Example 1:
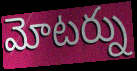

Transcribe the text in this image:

మోటర్ను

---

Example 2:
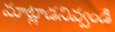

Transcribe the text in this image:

మాట్లాడనివ్వండి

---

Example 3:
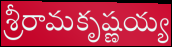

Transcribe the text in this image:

శ్రీరామకృష్ణయ్య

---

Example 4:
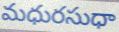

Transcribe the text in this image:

మధురసుధా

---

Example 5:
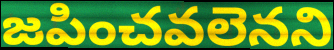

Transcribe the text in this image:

జపించవలెనని